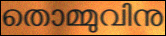
തൊമ്മുവിനു